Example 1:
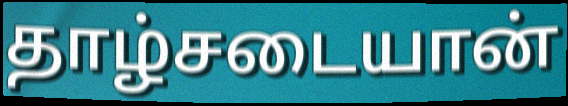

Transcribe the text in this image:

தாழ்சடையான்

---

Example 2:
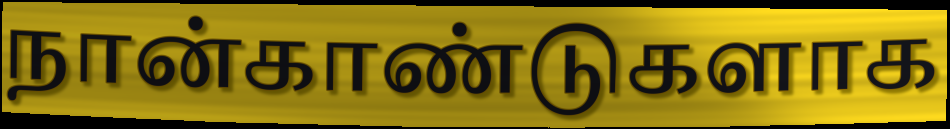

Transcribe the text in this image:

நான்காண்டுகளாக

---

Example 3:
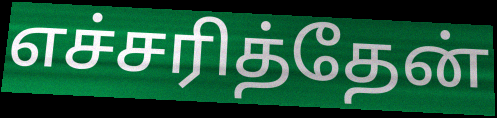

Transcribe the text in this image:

எச்சரித்தேன்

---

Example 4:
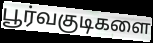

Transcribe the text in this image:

பூர்வகுடிகளை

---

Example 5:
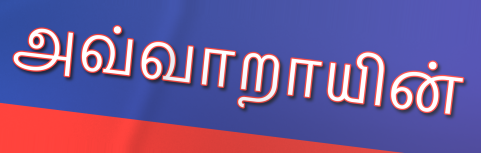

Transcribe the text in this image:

அவ்வாறாயின்